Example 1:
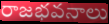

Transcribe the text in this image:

రాజభవనాలు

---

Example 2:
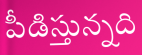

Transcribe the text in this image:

పీడిస్తున్నది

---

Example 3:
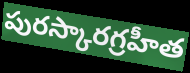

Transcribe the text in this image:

పురస్కారగ్రహీత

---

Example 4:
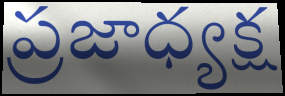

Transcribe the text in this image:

ప్రజాధ్యక్ష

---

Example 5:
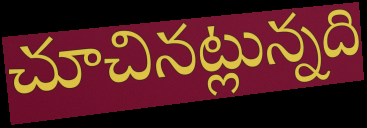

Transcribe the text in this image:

చూచినట్లున్నది